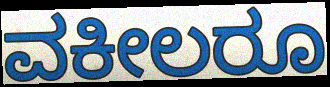
ವಕೀಲರೂ